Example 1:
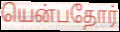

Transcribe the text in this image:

யென்பதோர்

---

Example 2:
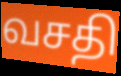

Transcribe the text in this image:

வசதி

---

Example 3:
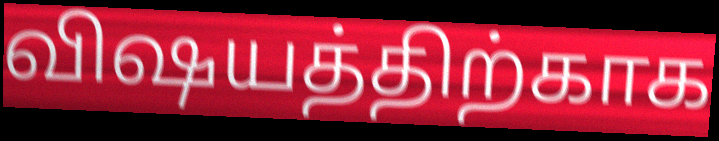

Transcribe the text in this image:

விஷயத்திற்காக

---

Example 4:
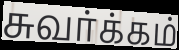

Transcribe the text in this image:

சுவர்க்கம்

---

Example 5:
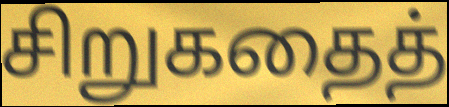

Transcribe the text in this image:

சிறுகதைத்